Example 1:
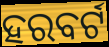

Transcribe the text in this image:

ହରବର୍ଟ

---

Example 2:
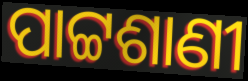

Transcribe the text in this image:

ପାଟ୍ଟଶାଣୀ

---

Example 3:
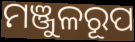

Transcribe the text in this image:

ମଞ୍ଜୁଳରୂପ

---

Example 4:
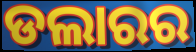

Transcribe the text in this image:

ଡଲାରର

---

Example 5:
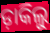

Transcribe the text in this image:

ଡ଼ାକିଲୁ